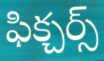
ఫిక్చర్స్